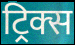
ट्रिक्‍स